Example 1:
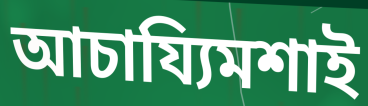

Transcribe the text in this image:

আচায্যিমশাই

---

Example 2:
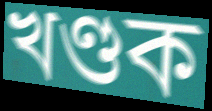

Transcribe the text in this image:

খণ্ডক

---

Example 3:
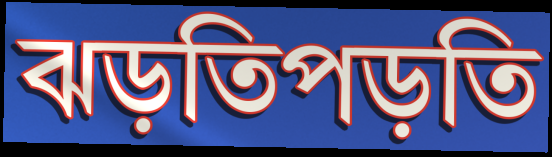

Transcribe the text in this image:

ঝড়তিপড়তি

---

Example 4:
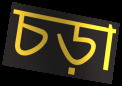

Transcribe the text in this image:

চড়া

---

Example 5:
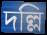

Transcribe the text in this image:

দল্লি